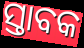
ସ୍ତାବକ